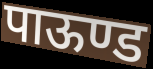
पाऊण्ड